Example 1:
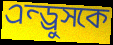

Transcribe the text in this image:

এন্ড্রুসকে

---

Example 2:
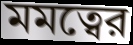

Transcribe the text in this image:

মমত্বের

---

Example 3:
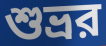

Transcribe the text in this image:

শুভ্রর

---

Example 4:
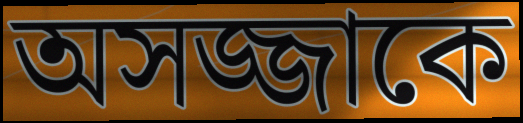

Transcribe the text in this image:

অসজ্জাকে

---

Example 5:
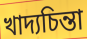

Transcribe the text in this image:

খাদ্যচিন্তা